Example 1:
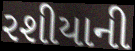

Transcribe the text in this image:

રશીયાની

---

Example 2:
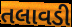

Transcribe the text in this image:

તલાવડી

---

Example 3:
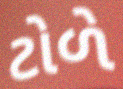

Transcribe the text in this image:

ટોળે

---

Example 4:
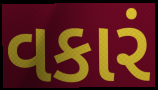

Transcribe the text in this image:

વકારં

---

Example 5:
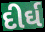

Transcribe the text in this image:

દીર્ઘ